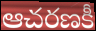
ఆచరణకీ